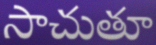
సాచుతూ